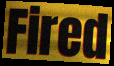
Fired